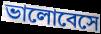
ভালোবেসে